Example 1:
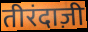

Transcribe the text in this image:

तीरंदाज़ी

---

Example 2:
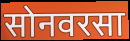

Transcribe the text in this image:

सोनवरसा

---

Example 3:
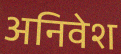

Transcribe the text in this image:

अनिवेश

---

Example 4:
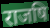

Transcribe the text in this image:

राजषि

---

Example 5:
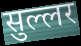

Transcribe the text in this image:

सुल्लर